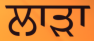
ਲਾੜਾ